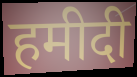
हमीदी